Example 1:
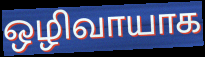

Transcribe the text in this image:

ஒழிவாயாக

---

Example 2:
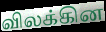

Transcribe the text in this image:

விலக்கின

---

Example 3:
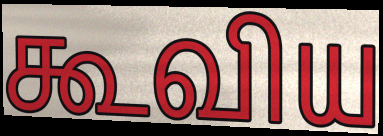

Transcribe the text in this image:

கூவிய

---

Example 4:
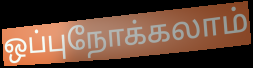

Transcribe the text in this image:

ஒப்புநோக்கலாம்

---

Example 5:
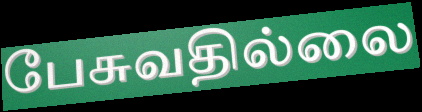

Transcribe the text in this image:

பேசுவதில்லை